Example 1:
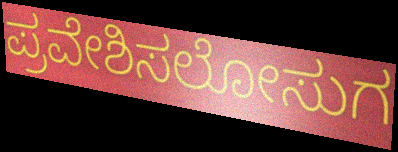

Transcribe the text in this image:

ಪ್ರವೇಶಿಸಲೋಸುಗ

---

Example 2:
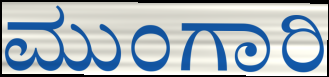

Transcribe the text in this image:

ಮುಂಗಾರಿ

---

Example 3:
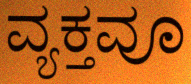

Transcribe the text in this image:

ವ್ಯಕ್ತವೂ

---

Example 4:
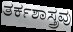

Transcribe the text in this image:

ತರ್ಕಶಾಸ್ತ್ರವು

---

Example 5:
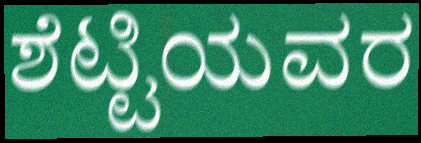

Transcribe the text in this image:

ಶೆಟ್ಟಿಯವರ